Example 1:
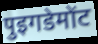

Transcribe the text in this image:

पुइगडेमोंट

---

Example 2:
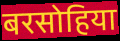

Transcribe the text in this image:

बरसोहिया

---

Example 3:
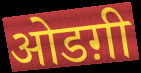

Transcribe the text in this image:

ओडग़ी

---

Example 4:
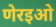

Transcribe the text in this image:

णेरइओ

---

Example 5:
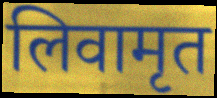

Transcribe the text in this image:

लिवामृत